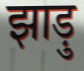
झाड़ु